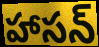
హాసన్